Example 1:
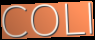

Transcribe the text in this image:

COLI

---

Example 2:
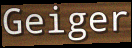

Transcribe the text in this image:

Geiger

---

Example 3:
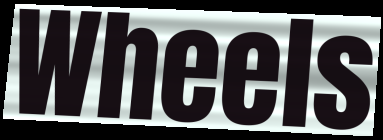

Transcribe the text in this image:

Wheels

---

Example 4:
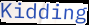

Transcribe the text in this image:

Kidding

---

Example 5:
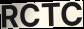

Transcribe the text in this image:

RCTC